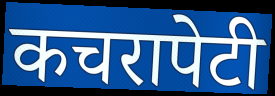
कचरापेटी